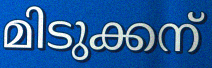
മിടുക്കന്